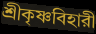
শ্রীকৃষ্ণবিহারী